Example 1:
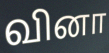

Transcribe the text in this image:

வினா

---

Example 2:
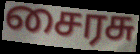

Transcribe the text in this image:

சைரசு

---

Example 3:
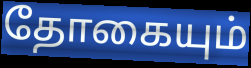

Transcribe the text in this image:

தோகையும்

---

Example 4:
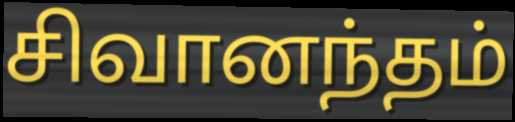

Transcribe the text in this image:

சிவானந்தம்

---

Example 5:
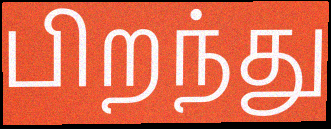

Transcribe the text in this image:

பிறந்து